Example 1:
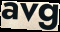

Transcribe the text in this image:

avg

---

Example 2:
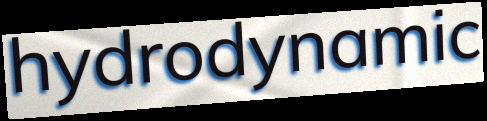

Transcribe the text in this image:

hydrodynamic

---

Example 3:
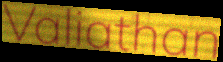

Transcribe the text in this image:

Valiathan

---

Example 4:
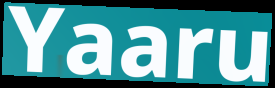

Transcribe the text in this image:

Yaaru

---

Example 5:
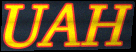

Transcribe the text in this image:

UAH